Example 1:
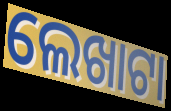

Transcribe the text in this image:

ଲେଖାଟା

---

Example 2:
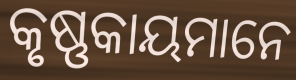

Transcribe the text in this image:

କୃଷ୍ଣକାୟମାନେ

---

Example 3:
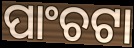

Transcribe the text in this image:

ପାଂଚଟା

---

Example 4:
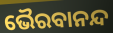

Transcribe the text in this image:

ଭୈରବାନନ୍ଦ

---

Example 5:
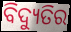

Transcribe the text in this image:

ବିଦ୍ୟୁତିର